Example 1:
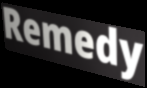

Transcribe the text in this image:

Remedy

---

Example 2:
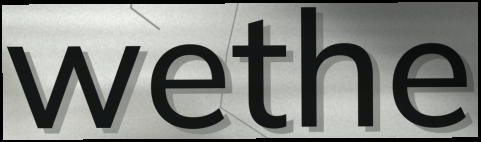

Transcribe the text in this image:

wethe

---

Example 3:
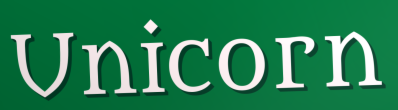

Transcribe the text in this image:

Unicorn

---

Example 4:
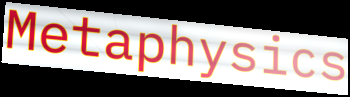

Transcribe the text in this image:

Metaphysics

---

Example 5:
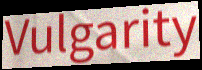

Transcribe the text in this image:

Vulgarity